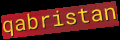
qabristan